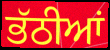
ਭੱਠੀਆਂ